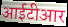
आईटीआर